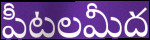
పీటలమీద